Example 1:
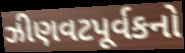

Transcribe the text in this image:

ઝીણવટપૂર્વકનો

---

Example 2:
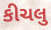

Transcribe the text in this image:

કીચલુ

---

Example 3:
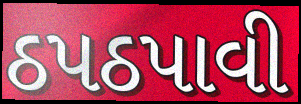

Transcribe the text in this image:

ઠપઠપાવી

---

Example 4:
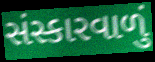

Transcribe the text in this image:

સંસ્કારવાળું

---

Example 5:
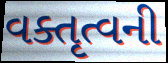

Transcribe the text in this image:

વક્તૃત્વની